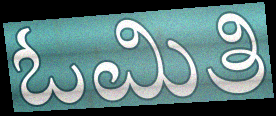
ಓಮಿತಿ